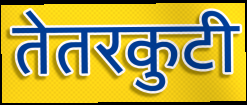
तेतरकुटी